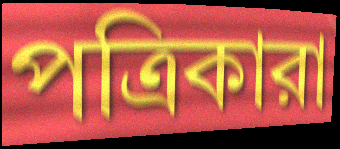
পত্রিকারা